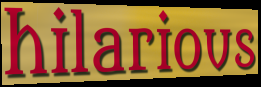
hilarious